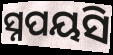
ସ୍ନପୟସି